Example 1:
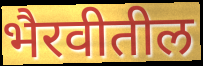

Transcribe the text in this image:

भैरवीतील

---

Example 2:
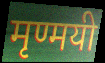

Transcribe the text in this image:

मृण्मयी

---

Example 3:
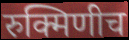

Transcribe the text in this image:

रुक्मिणीच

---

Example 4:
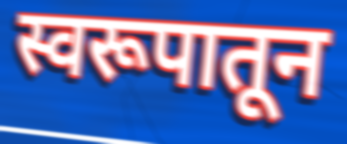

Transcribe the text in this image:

स्वरूपातून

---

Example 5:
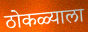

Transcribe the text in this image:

ठोकळ्याला